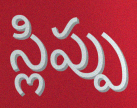
స్లిప్పు